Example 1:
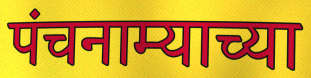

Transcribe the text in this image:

पंचनाम्याच्या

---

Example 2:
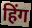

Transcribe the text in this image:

हिंग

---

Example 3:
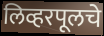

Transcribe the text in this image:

लिव्हरपूलचे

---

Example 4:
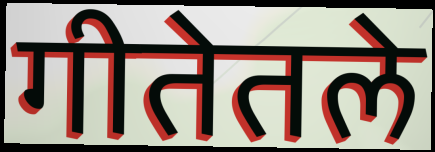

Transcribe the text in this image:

गीतेतले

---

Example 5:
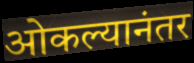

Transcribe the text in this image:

ओकल्यानंतर